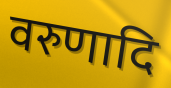
वरुणादि